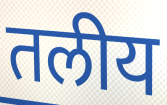
तलीय